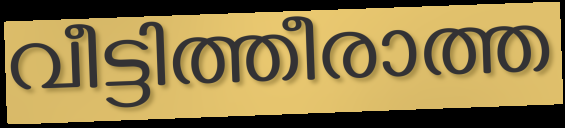
വീട്ടിത്തീരാത്ത